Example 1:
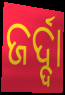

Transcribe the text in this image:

ଜର୍ଦ୍ଦା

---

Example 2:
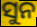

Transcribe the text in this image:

ସୁନ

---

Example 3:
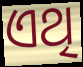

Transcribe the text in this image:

ଏଥି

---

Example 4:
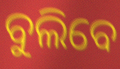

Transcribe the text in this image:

ବୁଲିବେ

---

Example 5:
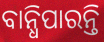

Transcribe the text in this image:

ବାନ୍ଧିପାରନ୍ତି